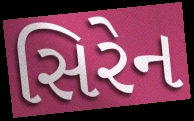
સિરેન